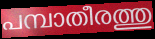
പമ്പാതീരത്തു